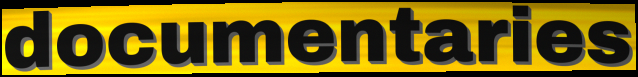
documentaries